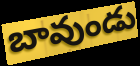
బావుండు